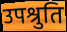
उपश्रुति